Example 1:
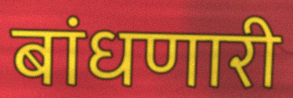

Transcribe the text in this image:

बांधणारी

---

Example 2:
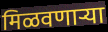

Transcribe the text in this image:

मिळवणाऱ्या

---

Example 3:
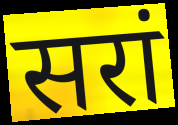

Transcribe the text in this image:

सरां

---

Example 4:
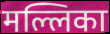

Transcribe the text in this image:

मल्लिका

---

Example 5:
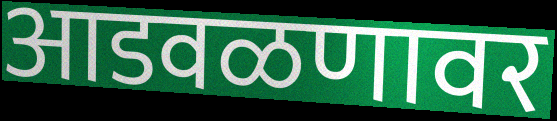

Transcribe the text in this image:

आडवळणावर